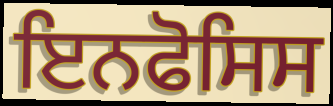
ਇਨਫੋਸਿਸ